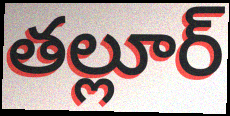
తల్లూర్